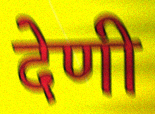
देणी